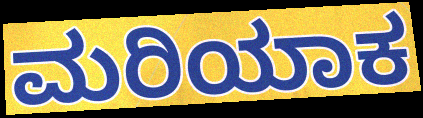
ಮರಿಯಾಕ